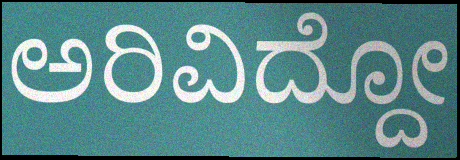
ಅರಿವಿದ್ದೋ